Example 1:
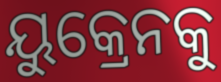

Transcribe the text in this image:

ୟୁକ୍ରେନକୁ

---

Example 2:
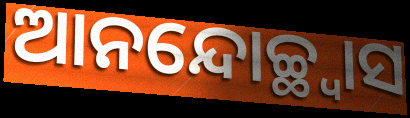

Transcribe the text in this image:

ଆନନ୍ଦୋଚ୍ଛ୍ୱାସ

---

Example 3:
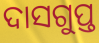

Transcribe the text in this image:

ଦାସଗୁପ୍ତ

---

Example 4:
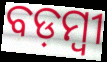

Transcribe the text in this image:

ବଡ଼ମ୍ବୀ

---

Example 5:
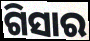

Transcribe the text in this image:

ଗିସାର